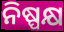
ନିଷ୍ପକ୍ଷ